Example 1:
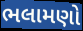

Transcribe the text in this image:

ભલામણો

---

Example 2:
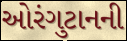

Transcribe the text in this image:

ઓરંગુટાનની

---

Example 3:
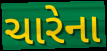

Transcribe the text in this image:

ચારેના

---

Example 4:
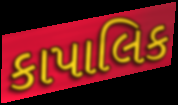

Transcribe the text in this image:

કાપાલિક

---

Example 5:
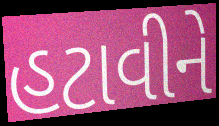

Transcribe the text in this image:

હટાવીને